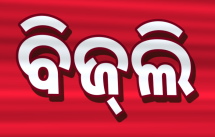
ବିଜ୍‍ଲି